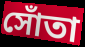
সোঁতা